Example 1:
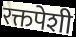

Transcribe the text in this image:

रक्तपेशी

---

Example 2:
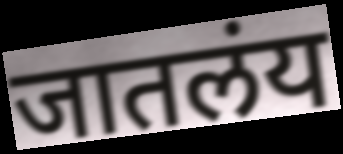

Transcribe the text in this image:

जातलंय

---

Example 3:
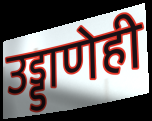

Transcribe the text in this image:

उड्डाणेही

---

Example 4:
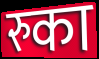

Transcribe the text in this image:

रुका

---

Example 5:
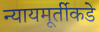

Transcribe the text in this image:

न्यायमूर्तीकडे